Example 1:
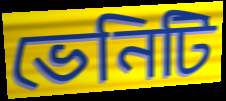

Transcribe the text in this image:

ভেনিটি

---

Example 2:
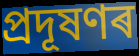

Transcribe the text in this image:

প্ৰদূষণৰ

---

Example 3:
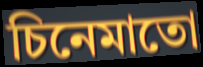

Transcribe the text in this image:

চিনেমাতো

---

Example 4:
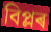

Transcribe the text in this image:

বিপ্লৰ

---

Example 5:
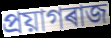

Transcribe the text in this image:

প্ৰয়াগৰাজ